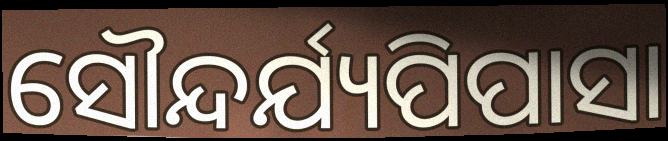
ସୌନ୍ଦର୍ଯ୍ୟପିପାସା